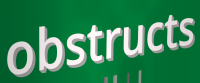
obstructs